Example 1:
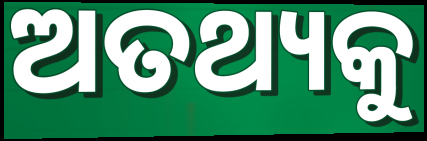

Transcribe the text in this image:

ଅତଥ୍ୟକୁ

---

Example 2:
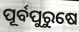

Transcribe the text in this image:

ପୂର୍ବପୁରୁଷେ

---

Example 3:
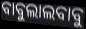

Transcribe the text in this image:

ବାବୁଲାଲବାବୁ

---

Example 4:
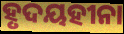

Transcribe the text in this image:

ହୃଦୟହୀନା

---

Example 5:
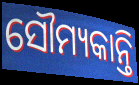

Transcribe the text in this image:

ସୌମ୍ୟକାନ୍ତି